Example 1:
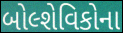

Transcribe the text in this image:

બોલ્શેવિકોના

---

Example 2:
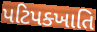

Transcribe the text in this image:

પટિપક્ખાતિ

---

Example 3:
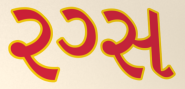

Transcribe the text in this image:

રગ્સ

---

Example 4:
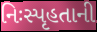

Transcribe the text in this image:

નિઃસ્પૃહતાની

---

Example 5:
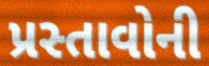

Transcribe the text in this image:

પ્રસ્તાવોની